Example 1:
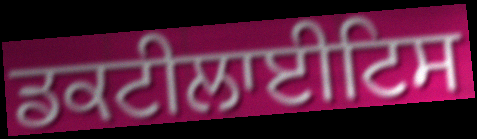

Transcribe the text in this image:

ਡਕਟੀਲਾਈਟਿਸ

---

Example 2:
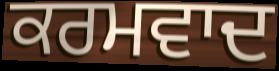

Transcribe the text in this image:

ਕਰਮਵਾਦ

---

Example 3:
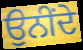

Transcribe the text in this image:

ਉਨੀਂਦੇ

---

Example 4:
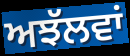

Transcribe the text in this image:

ਅਝੱਲਵਾਂ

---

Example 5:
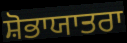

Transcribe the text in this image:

ਸ਼ੋਭਾਯਾਤਰਾ